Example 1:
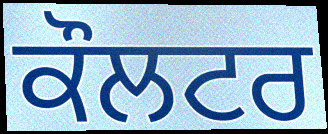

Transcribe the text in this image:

ਕੌਲਟਰ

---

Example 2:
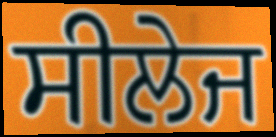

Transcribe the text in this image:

ਸੀਲੇਜ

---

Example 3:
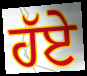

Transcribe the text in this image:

ਹੱਏ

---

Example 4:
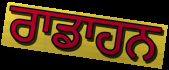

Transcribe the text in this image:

ਰਾਡਾਹਨ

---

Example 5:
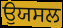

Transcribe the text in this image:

ਉਯਸਲ